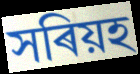
সৰিয়হ